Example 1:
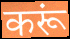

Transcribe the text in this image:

करूं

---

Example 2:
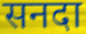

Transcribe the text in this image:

सनदा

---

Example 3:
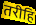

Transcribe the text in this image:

तरीहि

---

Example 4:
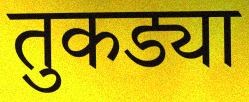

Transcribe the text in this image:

तुकड्या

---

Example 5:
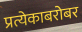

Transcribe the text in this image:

प्रत्येकाबरोबर